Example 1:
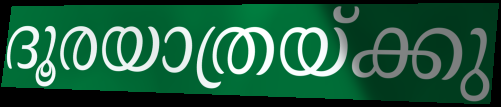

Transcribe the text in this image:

ദൂരയാത്രയ്ക്കു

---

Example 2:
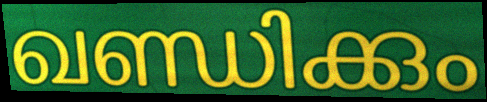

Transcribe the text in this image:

ഖണ്ഡിക്കും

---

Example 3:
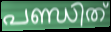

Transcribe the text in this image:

പണ്ഡിത്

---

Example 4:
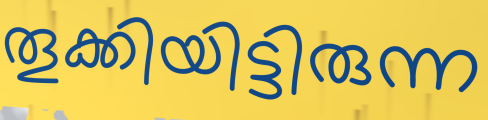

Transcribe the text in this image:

തൂക്കിയിട്ടിരുന്ന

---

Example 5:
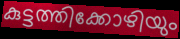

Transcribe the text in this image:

കുട്ടത്തിക്കോഴിയും